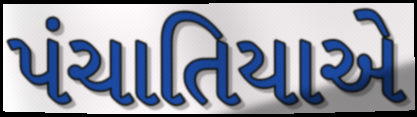
પંચાતિયાએ